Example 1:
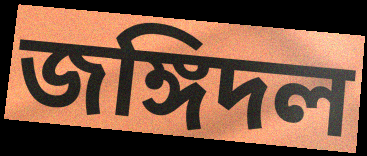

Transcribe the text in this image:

জঙ্গিদল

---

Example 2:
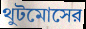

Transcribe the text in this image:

থুটমোসের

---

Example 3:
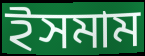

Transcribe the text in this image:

ইসমাম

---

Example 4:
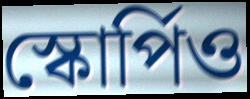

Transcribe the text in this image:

স্কোর্পিও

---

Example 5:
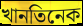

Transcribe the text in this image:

খানতিনেক